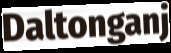
Daltonganj